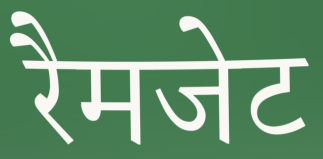
रैमजेट